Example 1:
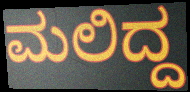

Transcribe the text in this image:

ಮಲಿದ್ದ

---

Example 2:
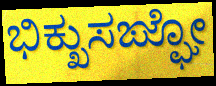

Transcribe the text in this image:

ಭಿಕ್ಖುಸಙ್ಘೋ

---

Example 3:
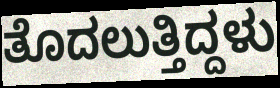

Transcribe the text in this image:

ತೊದಲುತ್ತಿದ್ದಳು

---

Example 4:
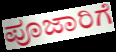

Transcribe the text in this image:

ಪೂಜಾರಿಗೆ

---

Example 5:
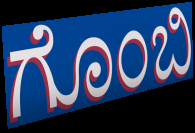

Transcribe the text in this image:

ಗೊಂಬಿ